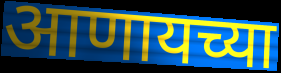
आणायच्या